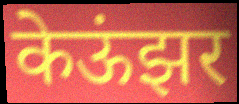
केऊंझर